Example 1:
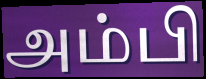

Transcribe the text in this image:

அம்பி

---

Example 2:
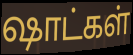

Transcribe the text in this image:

ஷாட்கள்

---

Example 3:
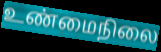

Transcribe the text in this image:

உண்மைநிலை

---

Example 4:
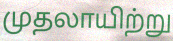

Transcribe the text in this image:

முதலாயிற்று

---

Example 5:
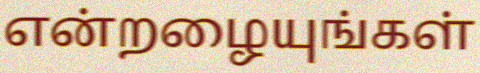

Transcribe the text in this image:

என்றழையுங்கள்